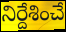
నిర్దేశించే